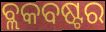
ବ୍ଲକବଷ୍ଟର